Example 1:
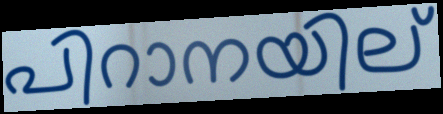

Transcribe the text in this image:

പിറാനയില്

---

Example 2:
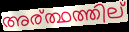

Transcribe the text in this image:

അര്ത്ഥത്തില്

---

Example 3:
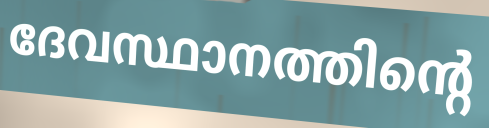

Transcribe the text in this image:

ദേവസ്ഥാനത്തിന്റെ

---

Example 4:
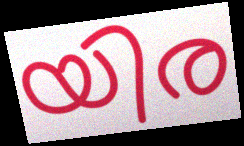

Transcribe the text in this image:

യിര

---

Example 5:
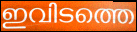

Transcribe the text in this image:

ഇവിടത്തെ